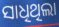
ସାଧିଥିଲା